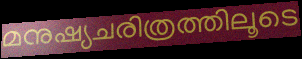
മനുഷ്യചരിത്രത്തിലൂടെ